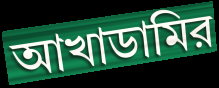
আখাডামির